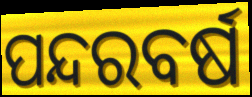
ପନ୍ଦରବର୍ଷ